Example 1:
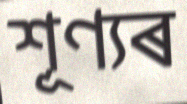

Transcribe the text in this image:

শূণ্যৰ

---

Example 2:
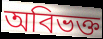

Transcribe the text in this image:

অবিভক্ত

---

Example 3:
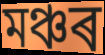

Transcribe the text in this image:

মঞ্চৰ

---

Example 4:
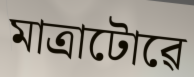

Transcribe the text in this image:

মাত্ৰাটোৱে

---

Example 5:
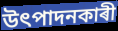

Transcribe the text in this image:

উৎপাদনকাৰী